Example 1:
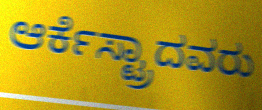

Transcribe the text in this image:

ಆರ್ಕೆಸ್ಟ್ರಾದವರು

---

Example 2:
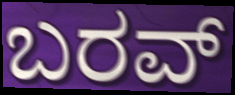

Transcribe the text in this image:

ಬರವ್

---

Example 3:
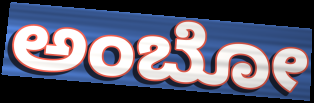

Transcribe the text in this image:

ಅಂಬೋ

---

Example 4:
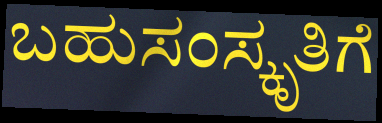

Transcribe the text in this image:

ಬಹುಸಂಸ್ಕೃತಿಗೆ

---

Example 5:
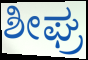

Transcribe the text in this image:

ಶೀಘ್ರ